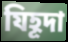
যিহূদা